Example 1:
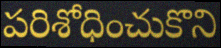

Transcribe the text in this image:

పరిశోధించుకొని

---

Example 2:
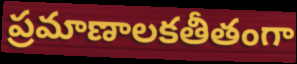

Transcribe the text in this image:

ప్రమాణాలకతీతంగా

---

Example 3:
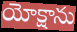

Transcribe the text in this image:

యోక్షాను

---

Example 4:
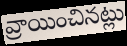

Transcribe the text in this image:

వ్రాయించినట్లు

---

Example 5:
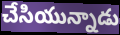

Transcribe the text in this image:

చేసియున్నాడు